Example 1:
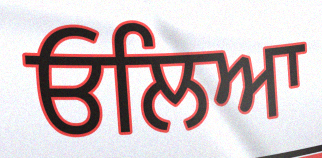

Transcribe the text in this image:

ਓਲਿਆ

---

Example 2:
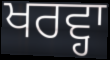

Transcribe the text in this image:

ਖਰਵ੍ਹਾ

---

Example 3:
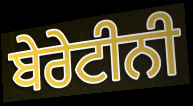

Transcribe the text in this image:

ਬੇਰੇਟੀਨੀ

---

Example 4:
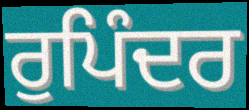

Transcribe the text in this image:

ਰੁਪਿੰਦਰ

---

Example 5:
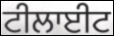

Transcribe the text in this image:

ਟੀਲਾਈਟ